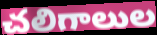
చలిగాలుల